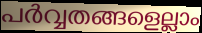
പർവ്വതങ്ങളെല്ലാം